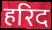
हरिद